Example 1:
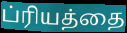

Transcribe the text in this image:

ப்ரியத்தை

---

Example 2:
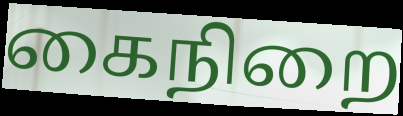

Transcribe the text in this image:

கைநிறை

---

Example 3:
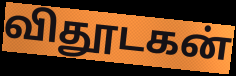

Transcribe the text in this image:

விதூடகன்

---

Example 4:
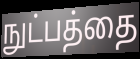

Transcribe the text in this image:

நுட்பத்தை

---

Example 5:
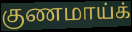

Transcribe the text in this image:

குணமாய்க்